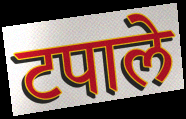
टपाले